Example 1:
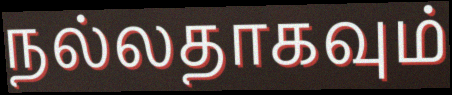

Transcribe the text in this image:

நல்லதாகவும்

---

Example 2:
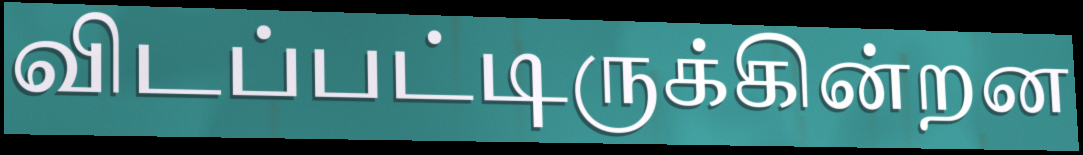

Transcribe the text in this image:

விடப்பட்டிருக்கின்றன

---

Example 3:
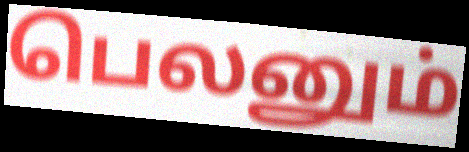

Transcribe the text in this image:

பெலனும்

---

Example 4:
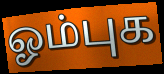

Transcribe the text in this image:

ஓம்புக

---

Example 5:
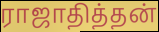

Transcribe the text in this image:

ராஜாதித்தன்